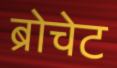
ब्रोचेट